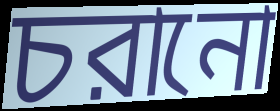
চরানো